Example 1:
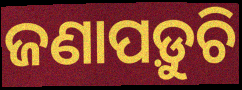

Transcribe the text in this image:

ଜଣାପଡ଼ୁଚି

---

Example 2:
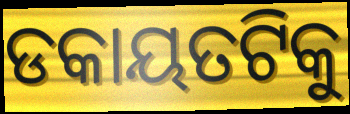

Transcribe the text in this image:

ଡକାୟତଟିକୁ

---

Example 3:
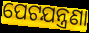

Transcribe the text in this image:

ପେଟଯନ୍ତ୍ରଣା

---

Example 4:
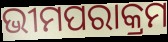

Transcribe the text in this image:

ଭୀମପରାକ୍ରମ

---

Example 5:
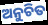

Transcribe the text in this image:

ଅନୁଚିତ